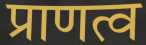
प्राणत्व